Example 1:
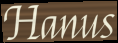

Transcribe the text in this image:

Hanus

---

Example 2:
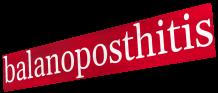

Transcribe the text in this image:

balanoposthitis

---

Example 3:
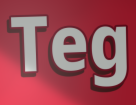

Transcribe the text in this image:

Teg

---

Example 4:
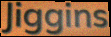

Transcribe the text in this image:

Jiggins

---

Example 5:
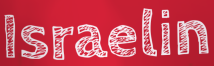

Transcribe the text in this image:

Israelin